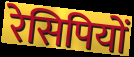
रेसिपियों